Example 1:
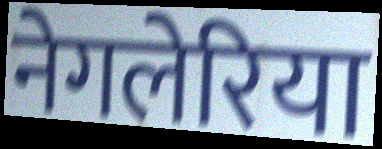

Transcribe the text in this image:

नेगलेरिया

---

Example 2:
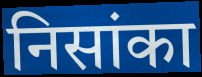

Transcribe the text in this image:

निसांका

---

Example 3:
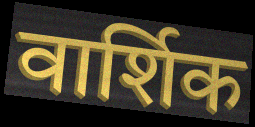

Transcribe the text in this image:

वार्शिक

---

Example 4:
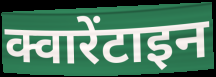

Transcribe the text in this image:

क्वारेंटाइन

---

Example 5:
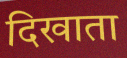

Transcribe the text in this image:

दिखाता